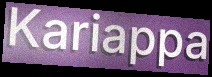
Kariappa